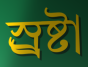
স্র্রষ্টা